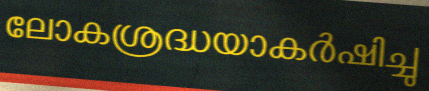
ലോകശ്രദ്ധയാകർഷിച്ചു